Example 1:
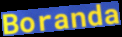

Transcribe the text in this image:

Boranda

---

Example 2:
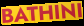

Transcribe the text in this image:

BATHINI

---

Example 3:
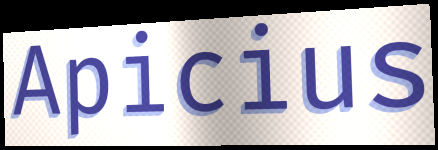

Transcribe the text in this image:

Apicius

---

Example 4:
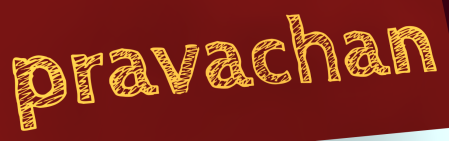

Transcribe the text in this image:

pravachan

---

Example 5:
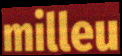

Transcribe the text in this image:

milleu